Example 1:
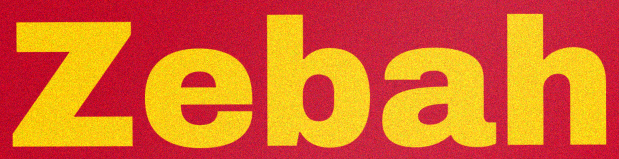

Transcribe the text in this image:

Zebah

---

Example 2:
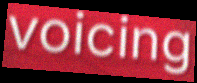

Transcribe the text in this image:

voicing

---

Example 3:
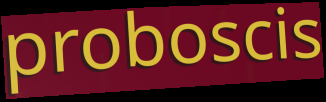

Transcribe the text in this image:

proboscis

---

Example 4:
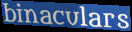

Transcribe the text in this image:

binaculars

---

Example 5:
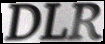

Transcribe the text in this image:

DLR